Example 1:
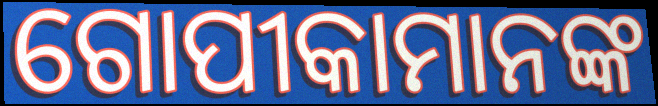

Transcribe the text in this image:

ଗୋପୀକାମାନଙ୍କ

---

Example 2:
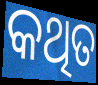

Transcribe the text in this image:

କଥିତ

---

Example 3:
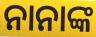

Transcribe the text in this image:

ନାନାଙ୍କ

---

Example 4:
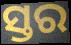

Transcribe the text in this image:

ସ୍ତର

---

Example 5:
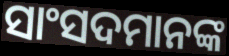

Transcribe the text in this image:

ସାଂସଦମାନଙ୍କ